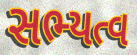
સભ્યત્વ